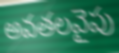
అవతలవైపు